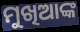
ମୁଖିଆଙ୍କ